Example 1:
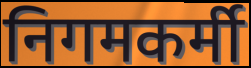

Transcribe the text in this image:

निगमकर्मी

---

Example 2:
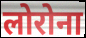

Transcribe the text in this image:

लोरोना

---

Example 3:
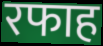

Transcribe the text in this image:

रफाह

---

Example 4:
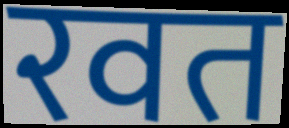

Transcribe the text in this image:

रवत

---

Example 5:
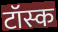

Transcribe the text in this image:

टॉस्‍क